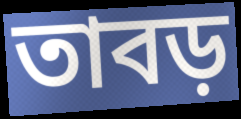
তাবড়